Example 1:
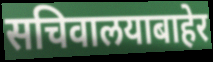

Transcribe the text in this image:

सचिवालयाबाहेर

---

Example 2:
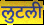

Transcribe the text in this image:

लुटली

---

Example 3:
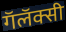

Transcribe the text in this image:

गॅलॅक्सी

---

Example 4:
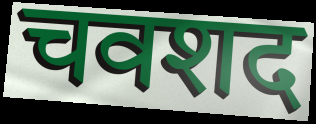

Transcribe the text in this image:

चवशद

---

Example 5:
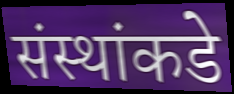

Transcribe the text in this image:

संस्थांकडे